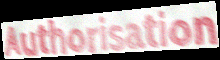
Authorisation